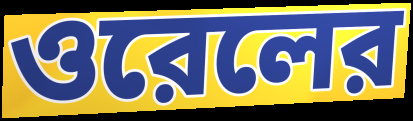
ওরেলের